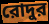
রোদুর